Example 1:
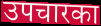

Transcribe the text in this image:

उपचारका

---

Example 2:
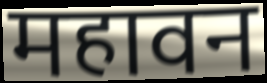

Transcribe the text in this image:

महावन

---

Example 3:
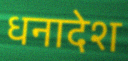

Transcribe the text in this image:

धनादेश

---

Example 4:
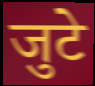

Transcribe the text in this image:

जुटे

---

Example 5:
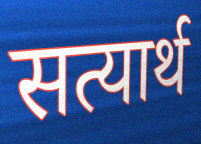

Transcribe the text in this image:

सत्यार्थ